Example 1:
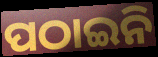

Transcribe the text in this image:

ପଠାଇନି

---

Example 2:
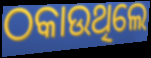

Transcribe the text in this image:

ଠକାଉଥିଲେ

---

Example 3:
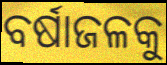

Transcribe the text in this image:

ବର୍ଷାଜଳକୁ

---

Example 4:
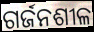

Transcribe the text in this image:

ଗର୍ଜନଶୀଳ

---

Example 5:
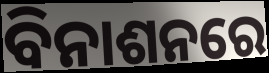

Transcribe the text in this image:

ବିନାଶନରେ